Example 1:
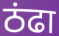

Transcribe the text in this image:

ठंढा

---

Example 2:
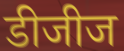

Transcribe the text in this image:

डीजीज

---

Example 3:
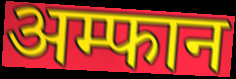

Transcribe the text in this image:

अम्फान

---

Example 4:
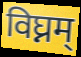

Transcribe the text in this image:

विघ्नम्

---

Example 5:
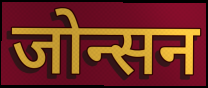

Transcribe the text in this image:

जोन्सन